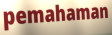
pemahaman